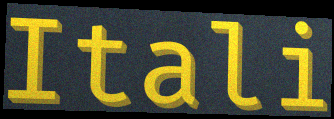
Itali